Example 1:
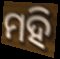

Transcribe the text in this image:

ମହି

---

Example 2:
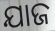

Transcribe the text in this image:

ଯାଜ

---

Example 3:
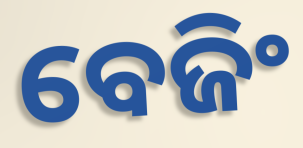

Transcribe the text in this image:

ବେଜିଂ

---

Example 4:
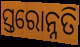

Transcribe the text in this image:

ସ୍ତରୋନ୍ନତି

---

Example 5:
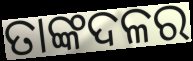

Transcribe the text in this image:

ତାଙ୍କଦଳର